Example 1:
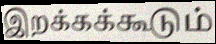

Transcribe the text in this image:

இறக்கக்கூடும்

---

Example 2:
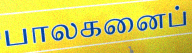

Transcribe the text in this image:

பாலகனைப்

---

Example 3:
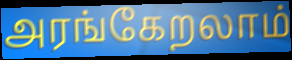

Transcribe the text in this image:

அரங்கேறலாம்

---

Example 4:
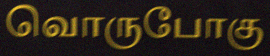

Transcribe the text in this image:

வொருபோகு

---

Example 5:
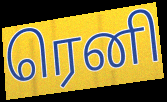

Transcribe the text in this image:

ரெனி